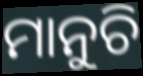
ମାନୁଚି